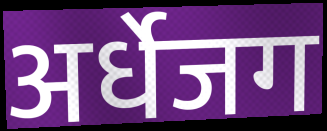
अर्धेजग